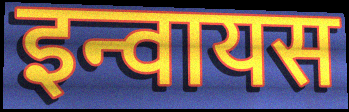
इन्वायस